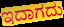
ಇದಾಗದು